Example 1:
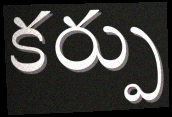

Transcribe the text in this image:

కర్పు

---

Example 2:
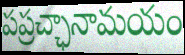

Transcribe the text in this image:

పప్రచ్ఛానామయం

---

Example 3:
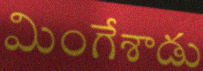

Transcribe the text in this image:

మింగేశాడు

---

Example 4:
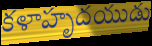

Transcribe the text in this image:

కళాహృదయుడు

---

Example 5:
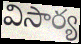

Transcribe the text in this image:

విసార్య